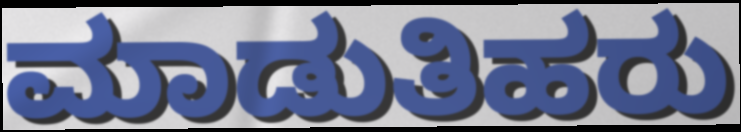
ಮಾಡುತಿಹರು